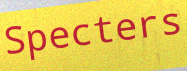
Specters